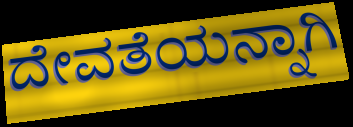
ದೇವತೆಯನ್ನಾಗಿ